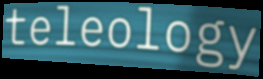
teleology